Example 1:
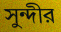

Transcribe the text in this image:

সুন্দীর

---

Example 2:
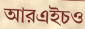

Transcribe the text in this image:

আরএইচও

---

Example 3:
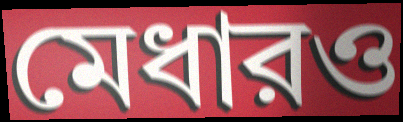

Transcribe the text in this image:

মেধারও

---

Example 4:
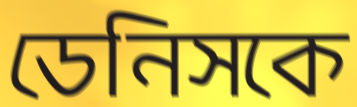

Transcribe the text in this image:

ডেনিসকে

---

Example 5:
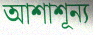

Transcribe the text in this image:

আশাশূন্য